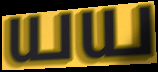
யய